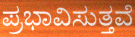
ಪ್ರಭಾವಿಸುತ್ತವೆ